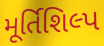
મૂર્તિશિલ્પ